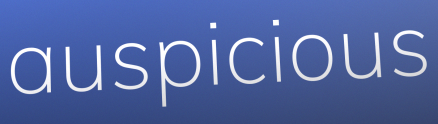
auspicious